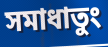
সমাধাতুং